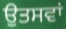
ਉਤਸਵਾਂ